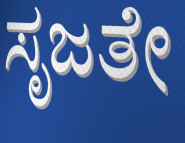
ಸೃಜತೇ